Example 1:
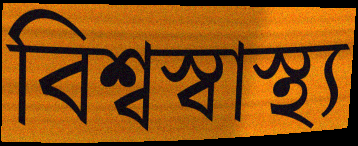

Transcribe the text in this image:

বিশ্বস্বাস্থ্য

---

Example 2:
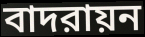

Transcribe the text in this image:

বাদরায়ন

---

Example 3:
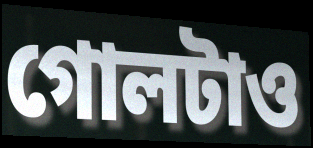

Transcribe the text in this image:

গোলটাও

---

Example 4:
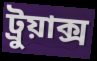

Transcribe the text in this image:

ট্রুয়াক্স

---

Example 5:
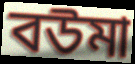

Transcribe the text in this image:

বউমা